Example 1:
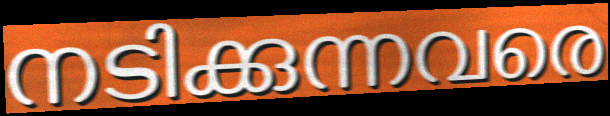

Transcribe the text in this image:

നടിക്കുന്നവരെ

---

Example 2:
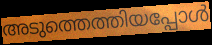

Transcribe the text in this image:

അടുത്തെത്തിയപ്പോൾ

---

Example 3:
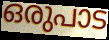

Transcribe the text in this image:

ഒരുപാട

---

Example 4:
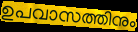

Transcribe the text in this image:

ഉപവാസത്തിനും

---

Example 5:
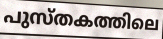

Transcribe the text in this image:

പുസ്തകത്തിലെ